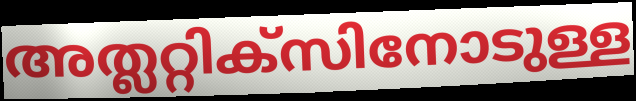
അത്ലറ്റിക്സിനോടുള്ള